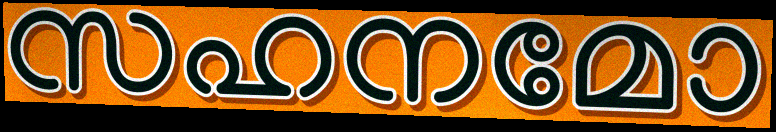
സഹനമോ